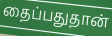
தைப்பதுதான்